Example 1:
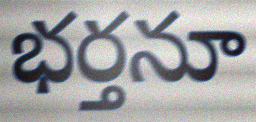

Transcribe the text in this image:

భర్తనూ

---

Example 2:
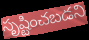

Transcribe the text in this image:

సృష్టించబడని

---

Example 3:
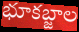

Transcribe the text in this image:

భూకబ్జాల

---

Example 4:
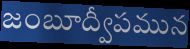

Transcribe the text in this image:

జంబూద్వీపమున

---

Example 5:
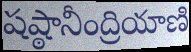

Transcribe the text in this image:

షష్ఠానీంద్రియాణి